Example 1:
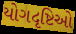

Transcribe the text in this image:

યોગદૃષ્ટિઓ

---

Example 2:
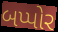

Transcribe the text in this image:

બપ્પોર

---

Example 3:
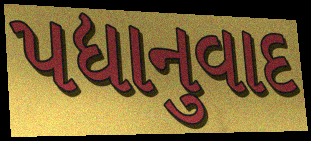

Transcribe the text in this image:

પદ્યાનુવાદ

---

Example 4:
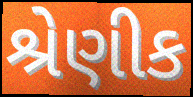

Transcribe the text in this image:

શ્રેણીક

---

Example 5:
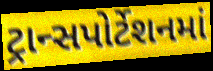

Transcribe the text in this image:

ટ્રાન્સપોર્ટેશનમાં